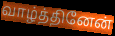
வாழ்த்தினேன்